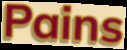
Pains